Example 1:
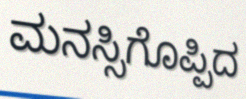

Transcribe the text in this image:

ಮನಸ್ಸಿಗೊಪ್ಪಿದ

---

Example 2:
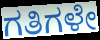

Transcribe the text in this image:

ಗತಿಗಳೇ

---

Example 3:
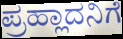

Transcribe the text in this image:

ಪ್ರಹ್ಲಾದನಿಗೆ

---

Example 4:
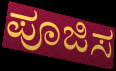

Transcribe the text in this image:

ಪೂಜಿಸ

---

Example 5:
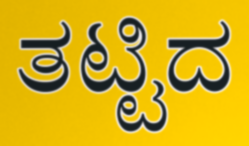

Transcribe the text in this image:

ತಟ್ಟಿದ